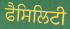
ਫੈਸਿਲਿਟੀ